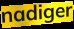
nadiger